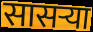
सासर्‍या